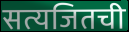
सत्यजितची